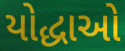
યોદ્ધાઓ